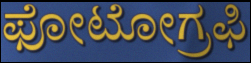
ಫೋಟೋಗ್ರಫಿ